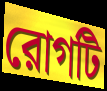
রোগটি